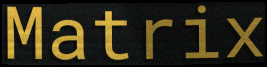
Matrix